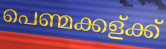
പെണ്മക്കള്ക്ക്